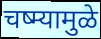
चष्म्यामुळे